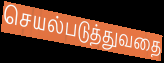
செயல்படுத்துவதை